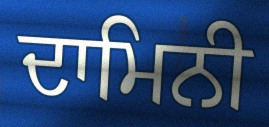
ਦਾਮਿਨੀ